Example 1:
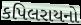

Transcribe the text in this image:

કપિલરાયનો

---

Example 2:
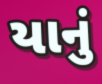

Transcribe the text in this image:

યાનું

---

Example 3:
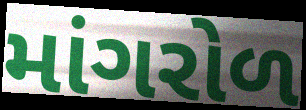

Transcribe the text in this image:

માંગરોળ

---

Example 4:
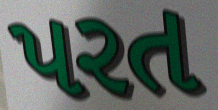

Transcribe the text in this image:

પરત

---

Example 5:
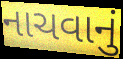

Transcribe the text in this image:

નાચવાનું